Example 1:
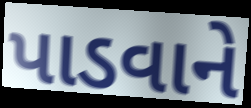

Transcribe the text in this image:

પાડવાને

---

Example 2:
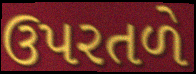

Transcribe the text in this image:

ઉપરતળે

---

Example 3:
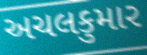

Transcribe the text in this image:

અચલકુમાર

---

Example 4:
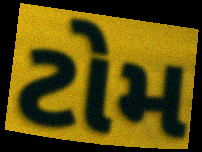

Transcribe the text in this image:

ટોમ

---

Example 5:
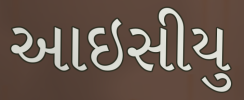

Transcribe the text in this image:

આઇસીયુ